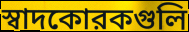
স্বাদকোরকগুলি